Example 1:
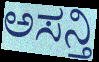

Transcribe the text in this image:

ಅಸನ್ತಿ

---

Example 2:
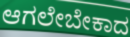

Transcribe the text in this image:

ಆಗಲೇಬೇಕಾದ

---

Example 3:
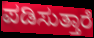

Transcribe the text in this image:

ಪಡಿಸುತ್ತಾರೆ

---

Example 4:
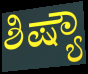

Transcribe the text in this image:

ಶಿಷ್ಯೌ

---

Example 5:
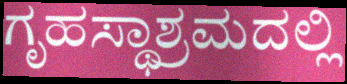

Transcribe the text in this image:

ಗೃಹಸ್ಥಾಶ್ರಮದಲ್ಲಿ